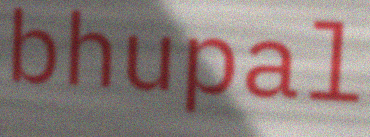
bhupal